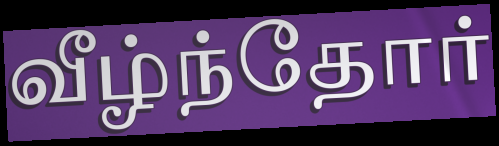
வீழ்ந்தோர்